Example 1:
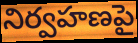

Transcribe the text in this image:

నిర్వహణపై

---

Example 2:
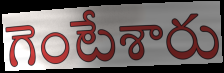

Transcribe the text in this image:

గెంటేశారు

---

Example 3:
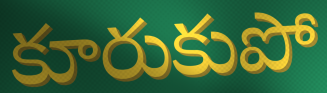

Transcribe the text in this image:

కూరుకుపో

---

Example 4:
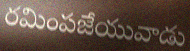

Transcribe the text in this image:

రమింపజేయువాడు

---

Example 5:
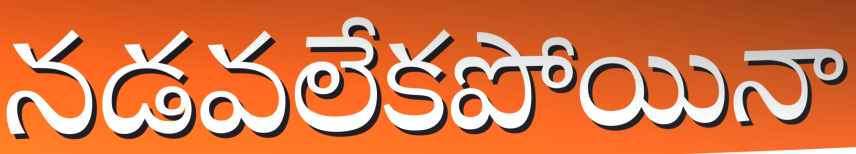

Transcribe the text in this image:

నడవలేకపోయినా